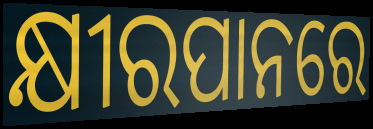
କ୍ଷୀରପାନରେ